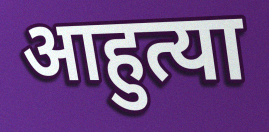
आहुत्या